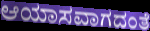
ಆಯಾಸವಾಗದಂತೆ